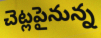
చెట్లపైనున్న